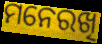
ମନେରଖି